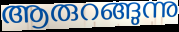
ആരുറങ്ങുന്നു